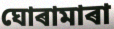
ঘোৰামাৰা